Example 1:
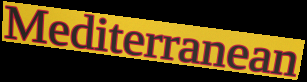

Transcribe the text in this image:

Mediterranean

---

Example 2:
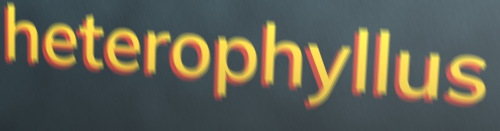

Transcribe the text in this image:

heterophyllus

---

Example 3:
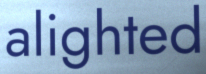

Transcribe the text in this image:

alighted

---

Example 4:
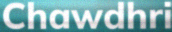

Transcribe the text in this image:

Chawdhri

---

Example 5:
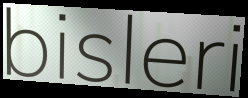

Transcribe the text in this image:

bisleri